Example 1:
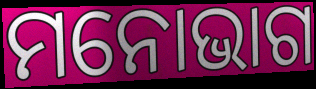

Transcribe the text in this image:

ମନୋଭାଗ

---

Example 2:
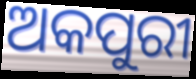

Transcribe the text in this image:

ଅକପୁରୀ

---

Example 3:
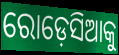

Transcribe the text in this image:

ରୋଡ଼େସିଆକୁ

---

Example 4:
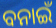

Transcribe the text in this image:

ବନାଇଁ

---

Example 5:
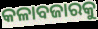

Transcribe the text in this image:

କଳାବଜାରକୁ